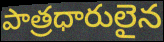
పాత్రధారులైన